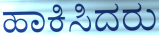
ಹಾಕಿಸಿದರು